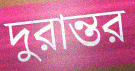
দুরান্তর